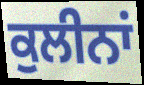
ਕੁਲੀਨਾਂ